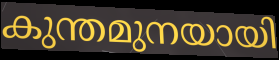
കുന്തമുനയായി